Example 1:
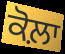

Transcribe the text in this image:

ਕੋਲ਼ਾ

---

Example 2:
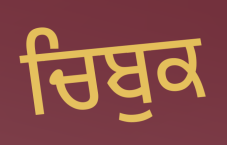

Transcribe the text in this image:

ਚਿਬੁਕ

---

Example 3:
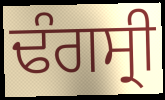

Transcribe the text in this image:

ਢੰਗਸ੍ਰੀ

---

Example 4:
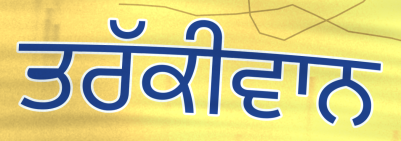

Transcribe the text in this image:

ਤਰੱਕੀਵਾਨ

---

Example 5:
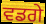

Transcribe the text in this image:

ਵਡਗੇ